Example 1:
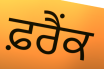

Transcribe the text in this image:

ਫ਼ਰੈਂਕ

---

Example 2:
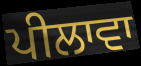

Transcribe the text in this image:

ਪੀਲਾਵਾ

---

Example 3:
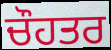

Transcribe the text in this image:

ਚੌਹਤਰ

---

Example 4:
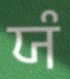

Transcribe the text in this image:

ਯੰ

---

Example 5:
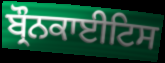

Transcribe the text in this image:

ਬ੍ਰੌਨਕਾਈਟਿਸ